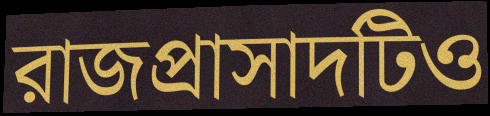
রাজপ্রাসাদটিও